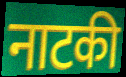
नाटकी